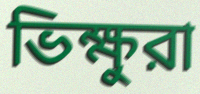
ভিক্ষুরা